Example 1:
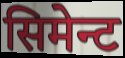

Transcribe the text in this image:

सिमेन्ट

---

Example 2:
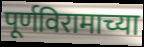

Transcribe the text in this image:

पूर्णविरामाच्या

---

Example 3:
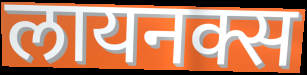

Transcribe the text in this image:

लायनक्स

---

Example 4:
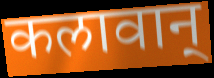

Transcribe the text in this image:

कलावान्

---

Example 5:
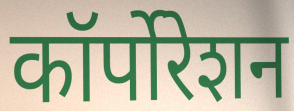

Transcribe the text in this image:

कॉर्पोरेशन